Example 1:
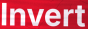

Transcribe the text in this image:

Invert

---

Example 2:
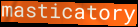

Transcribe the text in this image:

masticatory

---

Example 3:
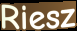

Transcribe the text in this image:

Riesz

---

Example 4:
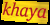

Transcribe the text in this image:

khaya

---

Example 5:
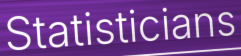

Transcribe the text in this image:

Statisticians